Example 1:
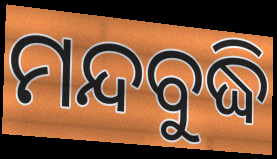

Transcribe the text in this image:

ମନ୍ଦବୁଦ୍ଧି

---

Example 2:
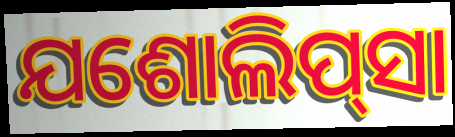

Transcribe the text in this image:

ଯଶୋଲିପ୍‌ସା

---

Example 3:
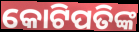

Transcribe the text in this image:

କୋଟିପତିଙ୍କ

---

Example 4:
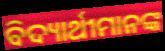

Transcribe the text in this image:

ବିଦ୍ୟାର୍ଥୀମାନଙ୍କ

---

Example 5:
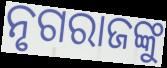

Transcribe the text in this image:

ନୃଗରାଜଙ୍କୁ